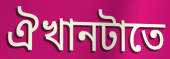
ঐখানটাতে